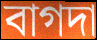
বাগদা